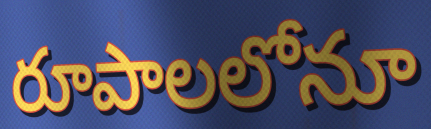
రూపాలలోనూ